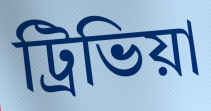
ট্রিভিয়া